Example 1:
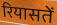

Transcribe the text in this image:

रियासतें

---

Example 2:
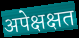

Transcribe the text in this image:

अपेक्षक्षत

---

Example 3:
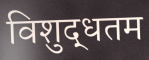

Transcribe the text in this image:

विशुद्धतम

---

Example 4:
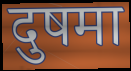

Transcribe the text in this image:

दुषमा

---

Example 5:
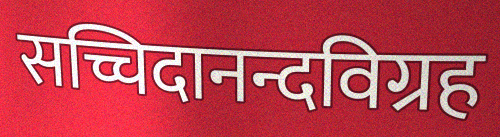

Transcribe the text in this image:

सच्चिदानन्दविग्रह